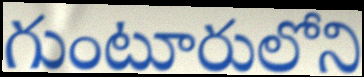
గుంటూరులోని